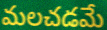
మలచడమే